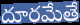
దూరమేతే